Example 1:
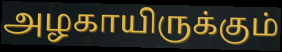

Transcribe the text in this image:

அழகாயிருக்கும்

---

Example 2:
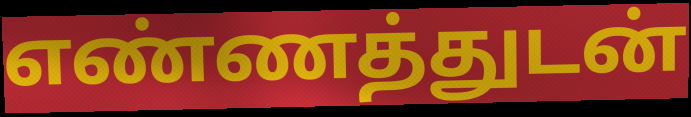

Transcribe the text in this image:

எண்ணத்துடன்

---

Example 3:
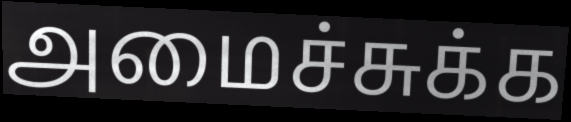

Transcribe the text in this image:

அமைச்சுக்க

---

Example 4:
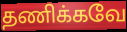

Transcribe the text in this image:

தணிக்கவே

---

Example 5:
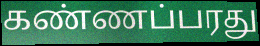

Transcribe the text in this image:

கண்ணப்பரது